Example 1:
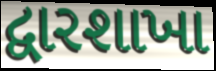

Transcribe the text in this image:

દ્વારશાખા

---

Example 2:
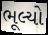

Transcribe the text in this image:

ભૂલ્‍યો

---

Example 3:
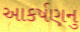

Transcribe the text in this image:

આકર્ષણનુ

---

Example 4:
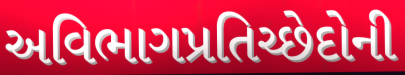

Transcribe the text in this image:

અવિભાગપ્રતિચ્છેદોની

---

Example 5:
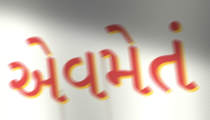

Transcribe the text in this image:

એવમેતં